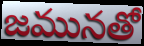
జమునతో